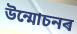
উন্মোচনৰ